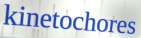
kinetochores